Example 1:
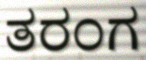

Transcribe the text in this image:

ತರಂಗ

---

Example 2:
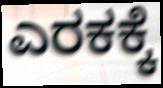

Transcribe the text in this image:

ಎರಕಕ್ಕೆ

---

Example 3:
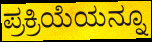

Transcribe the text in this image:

ಪ್ರಕ್ರಿಯೆಯನ್ನೂ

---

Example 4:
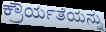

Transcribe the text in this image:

ಕ್ರೌರ್ಯತೆಯನ್ನು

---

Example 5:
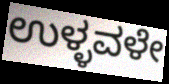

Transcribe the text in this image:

ಉಳ್ಳವಳೇ